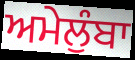
ਅਮੇਲੁੰਬਾ